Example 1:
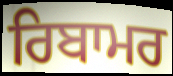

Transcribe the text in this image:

ਰਿਬਾਮਰ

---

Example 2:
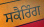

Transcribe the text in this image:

ਸਕੈਰਿੰਗ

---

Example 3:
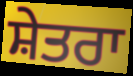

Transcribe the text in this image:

ਸ਼ੇਤਰਾ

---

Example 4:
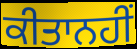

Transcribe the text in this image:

ਕੀਤਾਨਹੀਂ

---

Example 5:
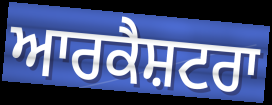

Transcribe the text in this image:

ਆਰਕੈਸ਼ਟਰਾ